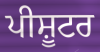
ਪੀਸ਼ੂਟਰ